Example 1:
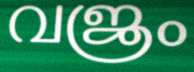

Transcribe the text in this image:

വജ്രം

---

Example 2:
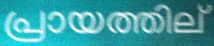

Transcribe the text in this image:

പ്രായത്തില്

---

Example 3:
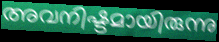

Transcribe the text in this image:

അവനിഷ്ടമായിരുന്നു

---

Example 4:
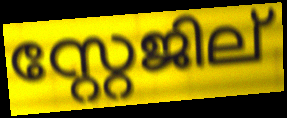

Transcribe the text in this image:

സ്റ്റേജില്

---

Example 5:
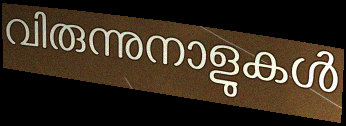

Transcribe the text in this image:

വിരുന്നുനാളുകൾ